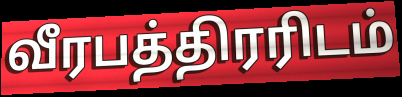
வீரபத்திரரிடம்